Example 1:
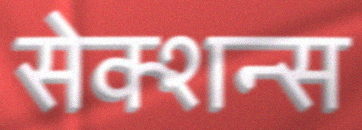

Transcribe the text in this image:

सेक्शन्स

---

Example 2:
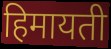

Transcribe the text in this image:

हिमायती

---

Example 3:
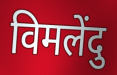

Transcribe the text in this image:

विमलेंदु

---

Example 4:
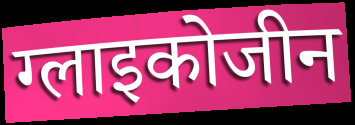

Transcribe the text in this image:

ग्लाइकोजीन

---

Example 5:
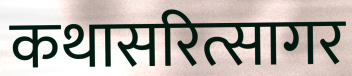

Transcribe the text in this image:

कथासरित्सागर